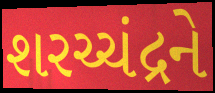
શરચ્ચંદ્રને